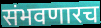
संभवणारच